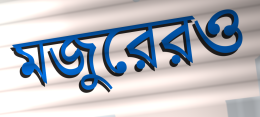
মজুরেরও